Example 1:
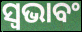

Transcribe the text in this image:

ସ୍ଵଭାବଂ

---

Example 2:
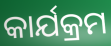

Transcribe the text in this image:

କାର୍ଯକ୍ରମ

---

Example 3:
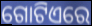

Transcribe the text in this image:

ଗୋଟିଏରେ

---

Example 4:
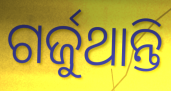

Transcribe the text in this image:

ଗର୍ଜୁଥାନ୍ତି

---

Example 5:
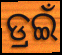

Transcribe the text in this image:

ଡ୍ରଇଁ